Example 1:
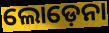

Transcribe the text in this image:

ଲୋଡ଼େନା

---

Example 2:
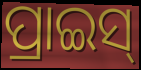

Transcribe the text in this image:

ପ୍ରାଇସ୍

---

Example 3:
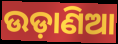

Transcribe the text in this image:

ଉଡ଼ାଣିଆ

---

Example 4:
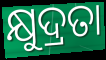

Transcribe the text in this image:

କ୍ଷୁଦ୍ରତା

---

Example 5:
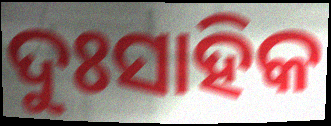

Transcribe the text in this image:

ଦୁଃସାହିକ